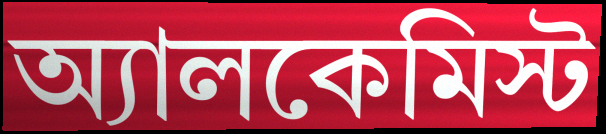
অ্যালকেমিস্ট